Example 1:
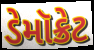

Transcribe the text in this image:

ડેમૉક્રેટ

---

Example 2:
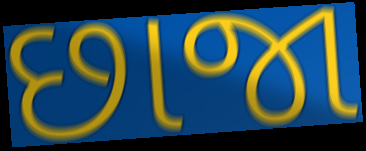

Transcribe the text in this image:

છાજા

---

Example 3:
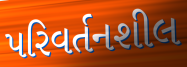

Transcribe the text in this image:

પરિવર્તનશીલ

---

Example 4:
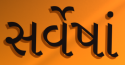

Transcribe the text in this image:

સર્વેષાં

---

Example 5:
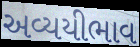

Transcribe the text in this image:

અવ્યયીભાવ